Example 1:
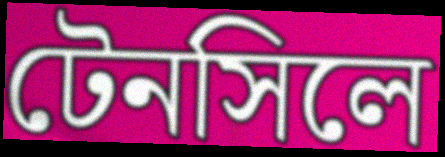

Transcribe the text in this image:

টেনসিলে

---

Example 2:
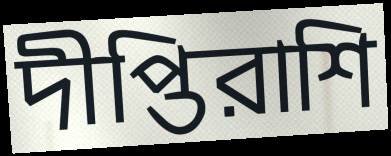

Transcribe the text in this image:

দীপ্তিরাশি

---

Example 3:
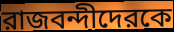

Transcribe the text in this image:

রাজবন্দীদেরকে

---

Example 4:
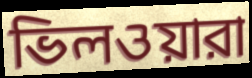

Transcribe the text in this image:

ভিলওয়ারা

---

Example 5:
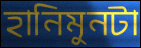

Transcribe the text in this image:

হানিমুনটা